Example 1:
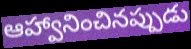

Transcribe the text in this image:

ఆహ్వానించినప్పుడు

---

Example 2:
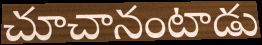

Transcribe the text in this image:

చూచానంటాడు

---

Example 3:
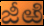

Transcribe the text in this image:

జీఱి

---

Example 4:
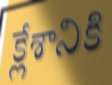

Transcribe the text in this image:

క్లేశానికి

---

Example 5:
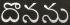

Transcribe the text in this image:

దొనను